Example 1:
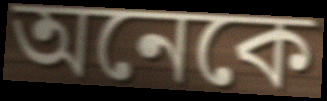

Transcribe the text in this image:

অনেকে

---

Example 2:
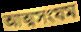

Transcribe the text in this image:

আত্মসংযম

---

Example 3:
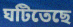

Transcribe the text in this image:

ঘটিতেছে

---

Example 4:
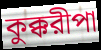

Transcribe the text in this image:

কুক্করীপা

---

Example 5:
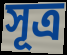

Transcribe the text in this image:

সূত্র